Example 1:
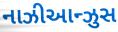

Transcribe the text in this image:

નાઝીઆન્ઝુસ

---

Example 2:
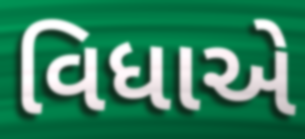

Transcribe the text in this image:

વિધાએ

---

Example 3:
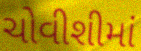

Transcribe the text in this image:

ચોવીશીમાં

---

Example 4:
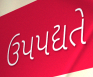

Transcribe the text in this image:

ઉપપદ્યતે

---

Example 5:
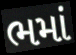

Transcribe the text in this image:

ભમાં